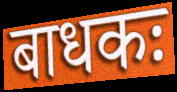
बाधकः